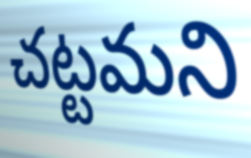
చట్టమని